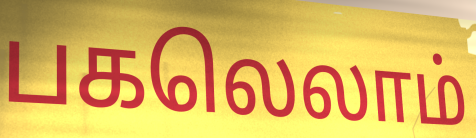
பகலெலாம்